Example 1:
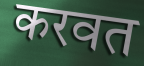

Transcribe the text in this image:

करवत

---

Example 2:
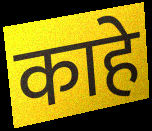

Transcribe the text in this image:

काहे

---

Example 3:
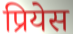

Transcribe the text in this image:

प्रियेस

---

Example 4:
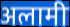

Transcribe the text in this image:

अलामी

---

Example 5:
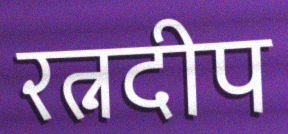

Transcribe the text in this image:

रत्नदीप